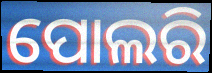
ପୋଲରି